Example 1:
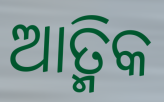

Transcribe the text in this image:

ଆତ୍ମିକ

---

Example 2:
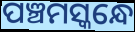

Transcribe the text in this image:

ପଞ୍ଚମସ୍କନ୍ଧେ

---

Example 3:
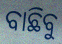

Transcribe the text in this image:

ବାଛିବୁ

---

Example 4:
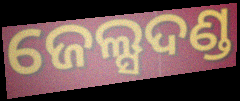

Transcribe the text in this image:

ଜେଲ୍ସଦଣ୍ଡ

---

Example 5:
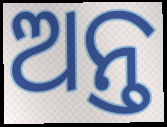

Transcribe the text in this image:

ଅନ୍ତ